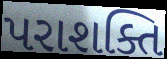
પરાશક્તિ